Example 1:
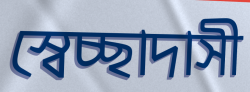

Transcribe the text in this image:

স্বেচ্ছাদাসী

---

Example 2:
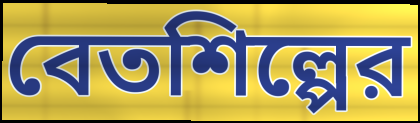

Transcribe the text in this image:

বেতশিল্পের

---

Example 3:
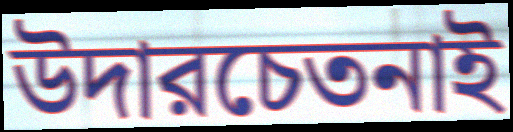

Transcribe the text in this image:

উদারচেতনাই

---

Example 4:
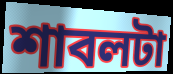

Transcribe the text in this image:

শাবলটা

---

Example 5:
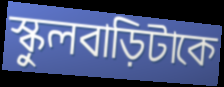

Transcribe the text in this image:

স্কুলবাড়িটাকে